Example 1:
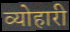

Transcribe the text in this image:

व्योहारी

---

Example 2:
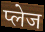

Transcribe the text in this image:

प्‍लेज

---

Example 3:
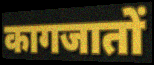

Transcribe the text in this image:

कागजातों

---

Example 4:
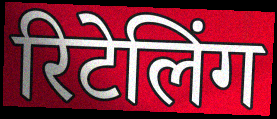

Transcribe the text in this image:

रिटेलिंग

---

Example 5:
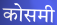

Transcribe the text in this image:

कोसमी